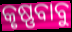
କୃଷ୍ଣବାବୁ